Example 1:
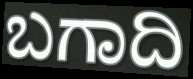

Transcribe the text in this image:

ಬಗಾದಿ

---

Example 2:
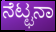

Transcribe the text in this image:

ನೆಟ್ಟನಾ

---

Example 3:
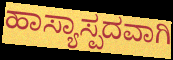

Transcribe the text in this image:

ಹಾಸ್ಯಾಸ್ಪದವಾಗಿ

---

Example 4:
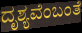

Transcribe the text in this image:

ದೃಶ್ಯವೆಂಬಂತೆ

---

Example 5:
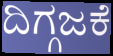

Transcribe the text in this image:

ದಿಗ್ಗಜಕೆ